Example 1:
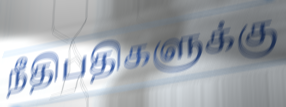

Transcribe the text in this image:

நீதிபதிகளுக்கு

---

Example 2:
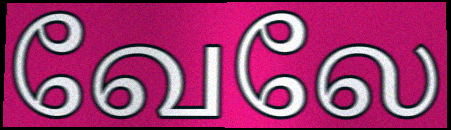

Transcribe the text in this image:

வேலே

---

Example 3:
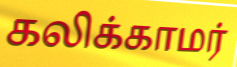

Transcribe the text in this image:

கலிக்காமர்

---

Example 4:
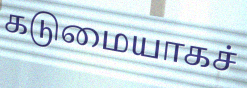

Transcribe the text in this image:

கடுமையாகச்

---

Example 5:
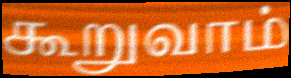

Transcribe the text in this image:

கூறுவாம்